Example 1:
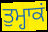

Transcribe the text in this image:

ਤੁਮ੍ਹਾਕਂ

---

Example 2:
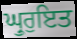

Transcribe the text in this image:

ਘ੍ਰੁਰੁਇਤ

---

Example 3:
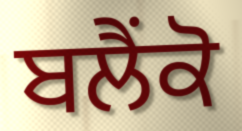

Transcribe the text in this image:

ਬਲੈਂਕੋ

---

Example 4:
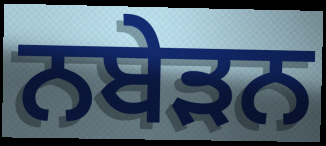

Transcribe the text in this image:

ਨਬੇੜਨ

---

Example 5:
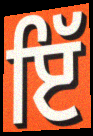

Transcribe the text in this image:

ਇੱ